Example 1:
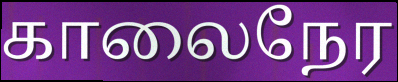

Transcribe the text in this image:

காலைநேர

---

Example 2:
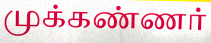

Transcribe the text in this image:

முக்கண்ணர்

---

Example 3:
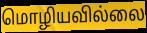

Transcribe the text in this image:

மொழியவில்லை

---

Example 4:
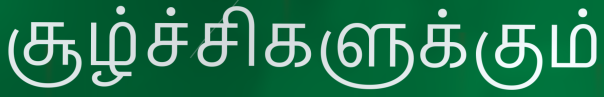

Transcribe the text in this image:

சூழ்ச்சிகளுக்கும்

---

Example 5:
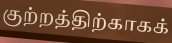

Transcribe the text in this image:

குற்றத்திற்காகக்